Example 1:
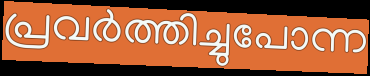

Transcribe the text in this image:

പ്രവർത്തിച്ചുപോന്ന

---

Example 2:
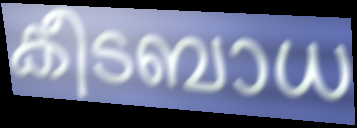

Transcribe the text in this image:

കീടബാധ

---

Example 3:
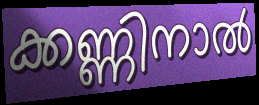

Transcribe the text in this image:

ക്കണ്ണിനാൽ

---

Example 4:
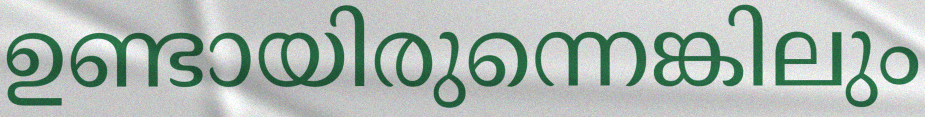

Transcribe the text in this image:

ഉണ്ടായിരുന്നെങ്കിലും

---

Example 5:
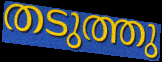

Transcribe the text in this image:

തടുത്തു